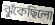
ঝুঁকেছিলো